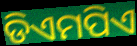
ଡିଏମପିଏ